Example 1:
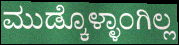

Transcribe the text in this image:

ಮುಡ್ಕೊಳ್ಳಾಂಗಿಲ್ಲ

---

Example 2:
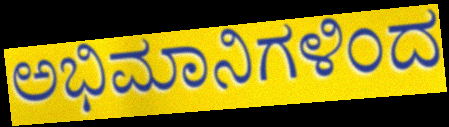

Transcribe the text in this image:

ಅಭಿಮಾನಿಗಳಿಂದ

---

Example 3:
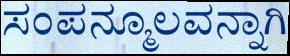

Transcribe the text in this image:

ಸಂಪನ್ಮೂಲವನ್ನಾಗಿ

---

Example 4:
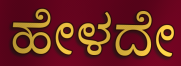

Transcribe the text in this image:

ಹೇಳದೇ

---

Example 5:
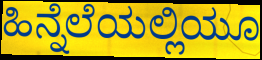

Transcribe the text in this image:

ಹಿನ್ನೆಲೆಯಲ್ಲಿಯೂ